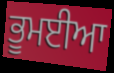
ਭੂਮਈਆ